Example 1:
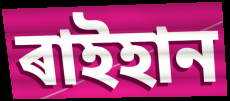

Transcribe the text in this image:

ৰাইহান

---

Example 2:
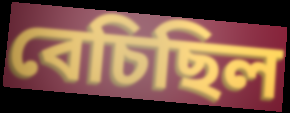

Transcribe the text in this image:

বেচিছিল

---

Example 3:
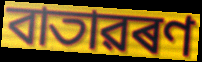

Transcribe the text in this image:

বাতাৱৰণ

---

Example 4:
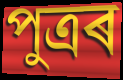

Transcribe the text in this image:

পুত্ৰৰ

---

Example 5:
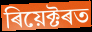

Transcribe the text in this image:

ৰিয়েক্টৰত